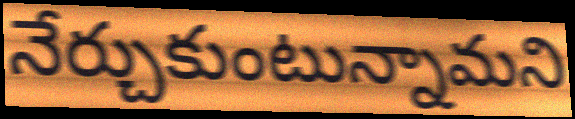
నేర్చుకుంటున్నామని